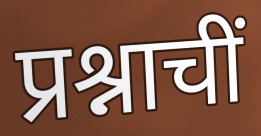
प्रश्नाचीं